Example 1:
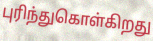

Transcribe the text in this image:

புரிந்துகொள்கிறது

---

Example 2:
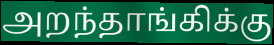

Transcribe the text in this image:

அறந்தாங்கிக்கு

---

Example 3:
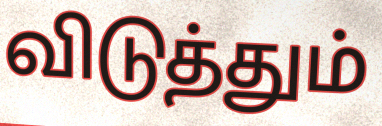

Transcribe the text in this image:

விடுத்தும்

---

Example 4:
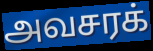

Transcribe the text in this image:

அவசரக்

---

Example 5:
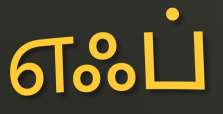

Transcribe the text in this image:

எஃப்